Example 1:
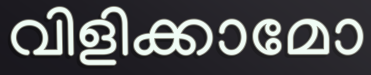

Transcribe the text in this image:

വിളിക്കാമോ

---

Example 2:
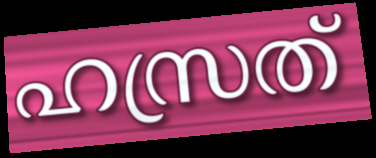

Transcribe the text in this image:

ഹസ്രത്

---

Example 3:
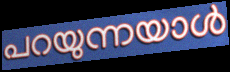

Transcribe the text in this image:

പറയുന്നയാൾ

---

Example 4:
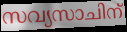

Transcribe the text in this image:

സവ്യസാചിന്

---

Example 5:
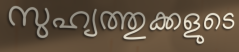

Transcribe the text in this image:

സുഹ്യത്തുക്കളുടെ